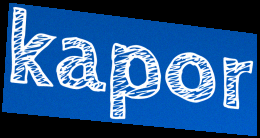
kapor